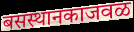
बसस्थानकाजवळ